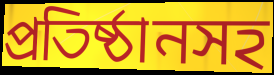
প্রতিষ্ঠানসহ